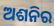
ଅଶନିର